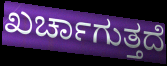
ಖರ್ಚಾಗುತ್ತದೆ